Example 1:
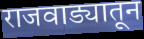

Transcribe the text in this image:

राजवाड्यातून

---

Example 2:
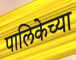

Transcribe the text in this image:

पालिकेच्या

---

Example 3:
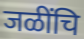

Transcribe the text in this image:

जळींचि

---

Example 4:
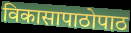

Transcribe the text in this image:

विकासापाठोपाठ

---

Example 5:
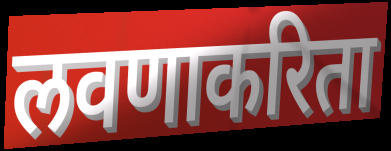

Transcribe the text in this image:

लवणाकरिता